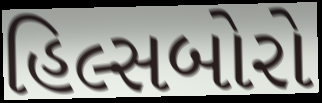
હિલ્સબોરો